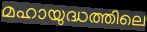
മഹായുദ്ധത്തിലെ